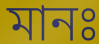
মানঃ